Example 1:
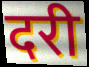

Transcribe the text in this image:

दरी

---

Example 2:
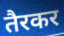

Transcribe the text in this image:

तैरकर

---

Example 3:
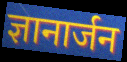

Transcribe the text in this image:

ज्ञानार्जन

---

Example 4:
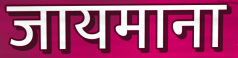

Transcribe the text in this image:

जायमाना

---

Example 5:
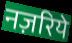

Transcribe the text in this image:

नज़रिये